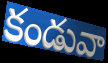
కండువా